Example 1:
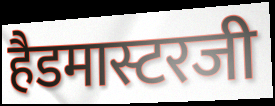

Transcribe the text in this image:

हैडमास्टरजी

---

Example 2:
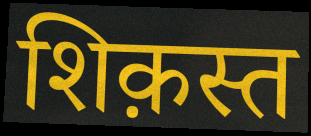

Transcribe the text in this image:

शिक़स्त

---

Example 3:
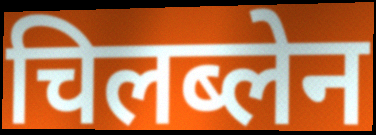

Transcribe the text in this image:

चिलब्लेन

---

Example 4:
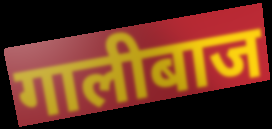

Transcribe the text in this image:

गालीबाज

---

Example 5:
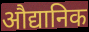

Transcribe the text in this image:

औद्यानिक